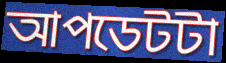
আপডেটটা